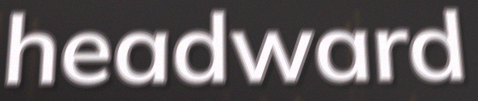
headward